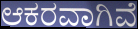
ಆಕರವಾಗಿವೆ